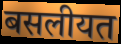
बसलीयत